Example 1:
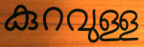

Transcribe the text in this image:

കുറവുള്ള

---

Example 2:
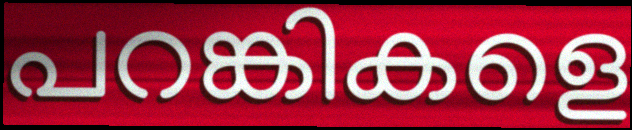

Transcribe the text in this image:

പറങ്കികളെ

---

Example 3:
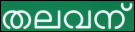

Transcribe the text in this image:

തലവന്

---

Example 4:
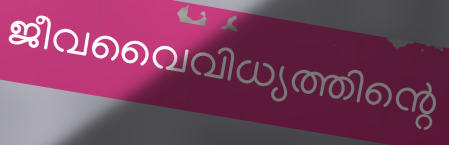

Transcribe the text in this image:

ജീവവൈവിധ്യത്തിന്റെ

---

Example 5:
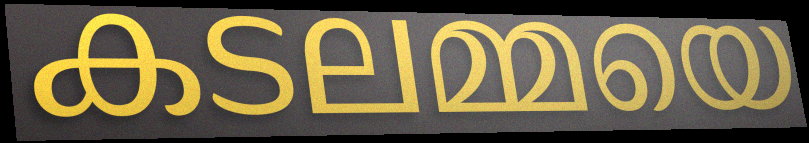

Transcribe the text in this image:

കടലമ്മയെ